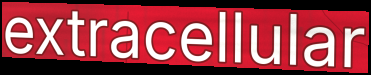
extracellular